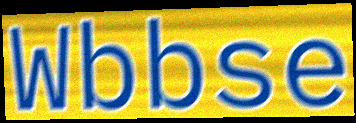
Wbbse